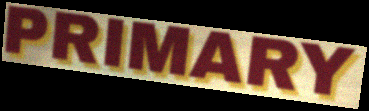
PRIMARY